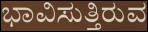
ಭಾವಿಸುತ್ತಿರುವ